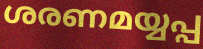
ശരണമയ്യപ്പ